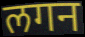
लगन